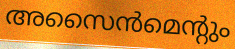
അസൈൻമെന്റും